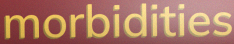
morbidities